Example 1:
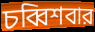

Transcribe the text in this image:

চব্বিশবার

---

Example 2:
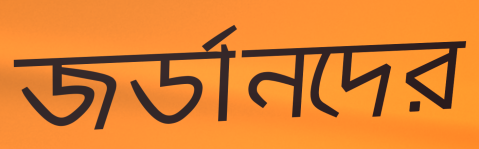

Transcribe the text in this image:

জর্ডানদের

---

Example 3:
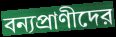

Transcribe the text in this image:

বন্যপ্রাণীদের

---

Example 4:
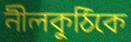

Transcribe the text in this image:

নীলকুঠিকে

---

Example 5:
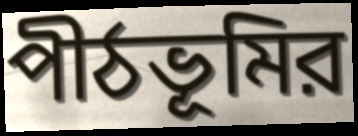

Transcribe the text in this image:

পীঠভূমির